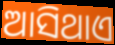
ଆସିଥାଏ